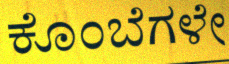
ಕೊಂಬೆಗಳೇ